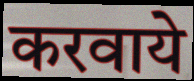
करवाये